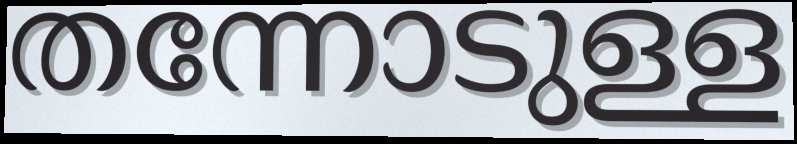
തന്നോടുള്ള